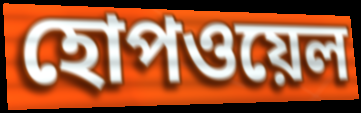
হোপওয়েল